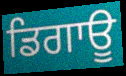
ਡਿਗਾਊ